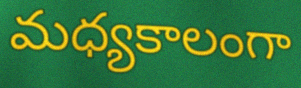
మధ్యకాలంగా